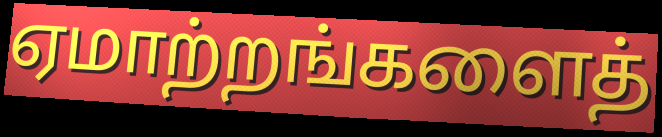
ஏமாற்றங்களைத்